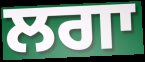
ਲਗਾ